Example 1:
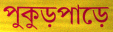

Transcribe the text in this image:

পুকুড়পাড়ে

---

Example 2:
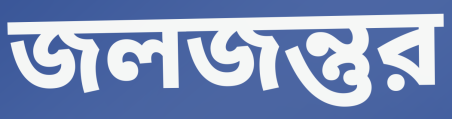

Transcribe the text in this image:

জলজন্তুর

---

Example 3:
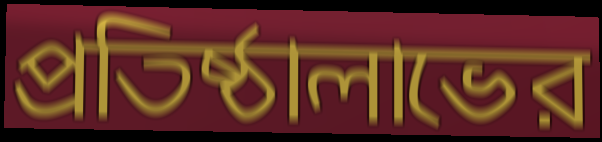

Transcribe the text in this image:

প্রতিষ্ঠালাভের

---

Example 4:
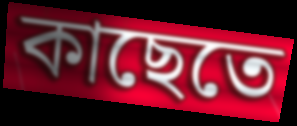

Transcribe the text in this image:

কাছেতে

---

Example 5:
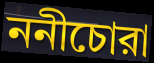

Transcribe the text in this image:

ননীচোরা